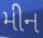
મીન